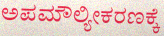
ಅಪಮೌಲ್ಯೀಕರಣಕ್ಕೆ